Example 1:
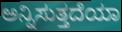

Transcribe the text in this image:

ಅನ್ನಿಸುತ್ತದೆಯಾ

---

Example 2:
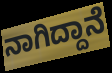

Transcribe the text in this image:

ನಾಗಿದ್ದಾನೆ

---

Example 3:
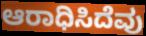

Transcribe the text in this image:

ಆರಾಧಿಸಿದೆವು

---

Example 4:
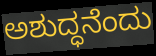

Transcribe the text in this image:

ಅಶುದ್ಧನೆಂದು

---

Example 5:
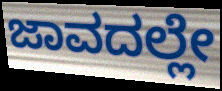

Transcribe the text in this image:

ಜಾವದಲ್ಲೇ